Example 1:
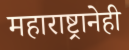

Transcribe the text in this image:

महाराष्ट्रानेही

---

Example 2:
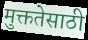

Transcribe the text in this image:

मुक्ततेसाठी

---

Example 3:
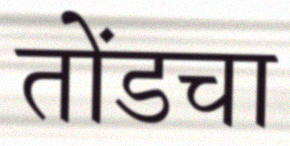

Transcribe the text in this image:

तोंडचा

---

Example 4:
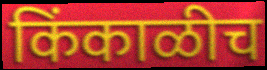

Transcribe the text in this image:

किंकाळीच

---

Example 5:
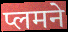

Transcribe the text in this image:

प्लमने